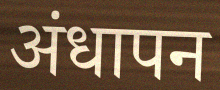
अंधापन